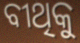
ବୀଥିକୁ